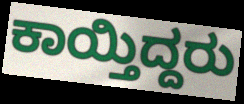
ಕಾಯ್ತಿದ್ದರು